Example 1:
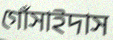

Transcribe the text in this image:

গোঁসাইদাস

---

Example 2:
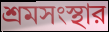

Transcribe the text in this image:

শ্রমসংস্থার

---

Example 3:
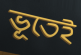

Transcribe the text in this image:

ভূতেই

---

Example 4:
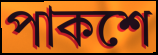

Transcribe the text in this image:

পাকশে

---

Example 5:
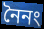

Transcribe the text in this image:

নৈনং